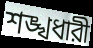
শঙ্খধারী